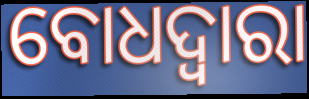
ବୋଧଦ୍ଵାରା